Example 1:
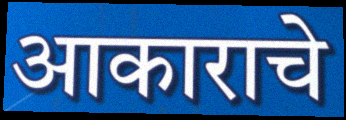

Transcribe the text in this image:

आकाराचे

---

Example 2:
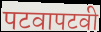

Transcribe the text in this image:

पटवापटवी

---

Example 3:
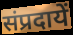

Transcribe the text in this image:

संप्रदायें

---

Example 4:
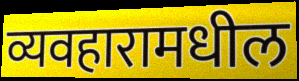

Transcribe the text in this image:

व्यवहारामधील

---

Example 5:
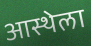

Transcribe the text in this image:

आस्थेला